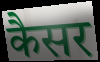
कैसर